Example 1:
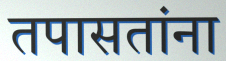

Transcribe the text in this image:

तपासतांना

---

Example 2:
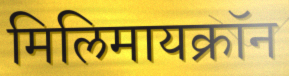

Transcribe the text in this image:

मिलिमायक्रॉन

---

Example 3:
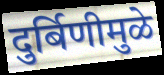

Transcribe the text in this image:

दुर्बिणीमुळे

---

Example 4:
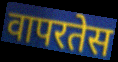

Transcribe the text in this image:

वापरतेस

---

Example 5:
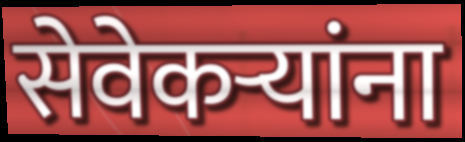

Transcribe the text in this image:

सेवेकऱ्यांना